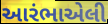
આરંભાએલી